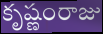
కృష్ణంరాజు